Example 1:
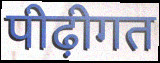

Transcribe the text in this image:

पीढ़ीगत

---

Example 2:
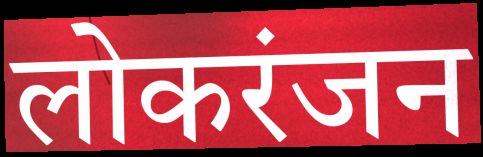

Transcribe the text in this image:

लोकरंजन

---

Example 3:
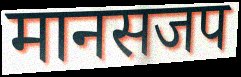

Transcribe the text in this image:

मानसजप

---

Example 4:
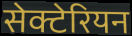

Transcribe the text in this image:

सेक्टेरियन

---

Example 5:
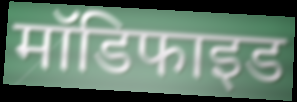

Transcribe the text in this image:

मॉडिफाइड